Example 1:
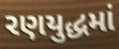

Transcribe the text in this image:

રણયુદ્ધમાં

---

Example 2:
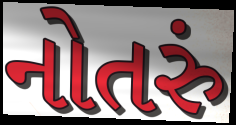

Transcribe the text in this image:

નોતરું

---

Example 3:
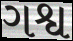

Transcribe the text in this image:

ગશ્વ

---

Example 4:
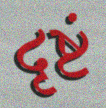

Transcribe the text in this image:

દૃષ્ટં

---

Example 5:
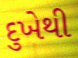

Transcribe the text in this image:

દુખેથી